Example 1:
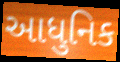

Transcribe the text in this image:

આધુનિક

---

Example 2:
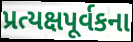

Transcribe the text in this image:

પ્રત્યક્ષપૂર્વકના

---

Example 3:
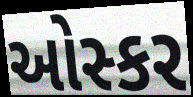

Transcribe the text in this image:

ઓસ્કર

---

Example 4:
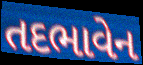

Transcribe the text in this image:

તદભાવેન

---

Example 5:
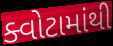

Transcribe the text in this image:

ક્વોટામાંથી